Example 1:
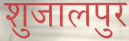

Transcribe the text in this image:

शुजालपुर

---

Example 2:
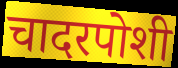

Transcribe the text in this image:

चादरपोशी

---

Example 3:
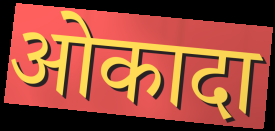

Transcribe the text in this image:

ओकादा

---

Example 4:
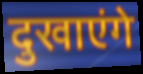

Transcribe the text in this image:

दुखाएंगे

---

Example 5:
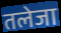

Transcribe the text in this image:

तलेजा